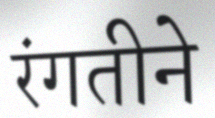
रंगतीने